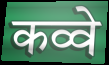
कव्वे